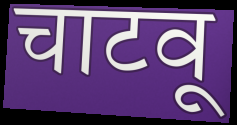
चाटवू